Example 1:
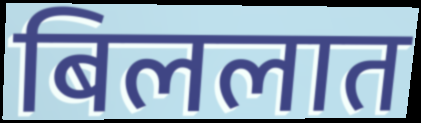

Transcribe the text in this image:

बिललात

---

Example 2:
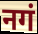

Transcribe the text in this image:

नगं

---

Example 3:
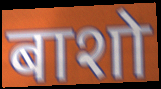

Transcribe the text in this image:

बाशो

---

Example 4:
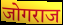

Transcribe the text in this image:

जोगराज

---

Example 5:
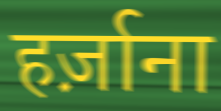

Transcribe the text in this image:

हर्ज़ाना